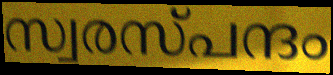
സ്വരസ്പന്ദം